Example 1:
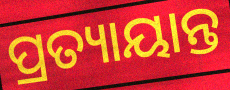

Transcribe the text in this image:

ପ୍ରତ୍ୟାୟାନ୍ତ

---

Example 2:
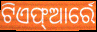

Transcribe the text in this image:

ଟିଏଫ୍ଆର୍ରେ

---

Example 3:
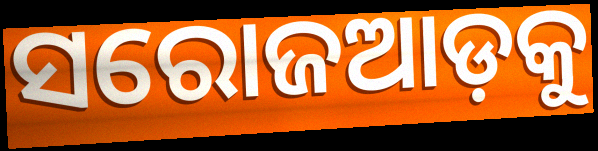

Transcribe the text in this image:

ସରୋଜଆଡ଼କୁ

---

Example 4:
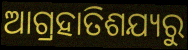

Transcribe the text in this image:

ଆଗ୍ରହାତିଶଯ୍ୟରୁ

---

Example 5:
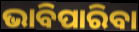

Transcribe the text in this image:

ଭାବିପାରିବା